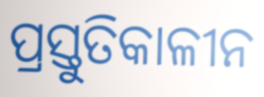
ପ୍ରସ୍ତୁତିକାଳୀନ